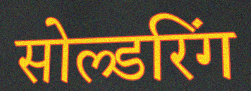
सोल्डरिंग